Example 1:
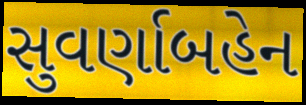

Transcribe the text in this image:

સુવર્ણાબહેન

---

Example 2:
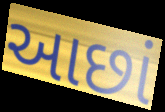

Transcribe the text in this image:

આછાં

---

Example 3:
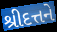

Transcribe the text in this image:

શ્રીદત્તને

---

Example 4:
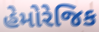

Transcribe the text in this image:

હેમોરેજિક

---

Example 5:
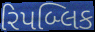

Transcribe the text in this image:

રિપબ્લિક